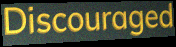
Discouraged